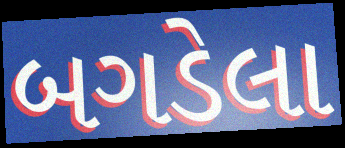
બગડેલા